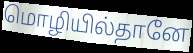
மொழியில்தானே